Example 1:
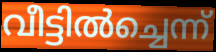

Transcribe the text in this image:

വീട്ടിൽച്ചെന്ന്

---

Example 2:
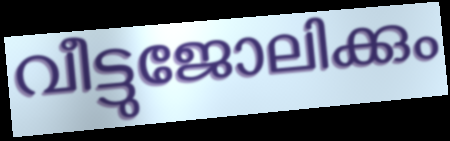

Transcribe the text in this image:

വീട്ടുജോലിക്കും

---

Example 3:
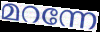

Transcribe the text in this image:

മറന്നേ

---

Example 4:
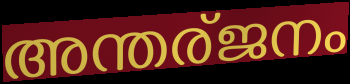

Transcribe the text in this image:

അന്തര്ജനം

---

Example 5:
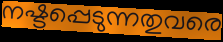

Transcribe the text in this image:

നഷ്ടപ്പെടുന്നതുവരെ